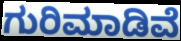
ಗುರಿಮಾಡಿವೆ